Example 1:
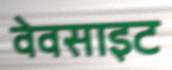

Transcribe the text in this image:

वेवसाइट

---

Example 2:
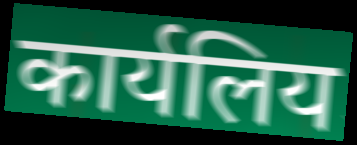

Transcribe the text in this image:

कार्यलिय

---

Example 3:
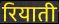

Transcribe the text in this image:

रियाती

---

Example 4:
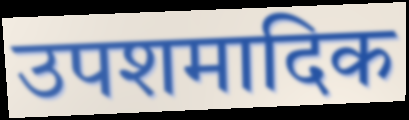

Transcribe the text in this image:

उपशमादिक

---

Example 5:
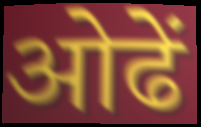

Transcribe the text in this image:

ओढें